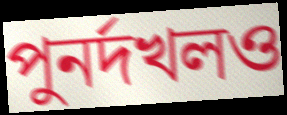
পুনর্দখলও